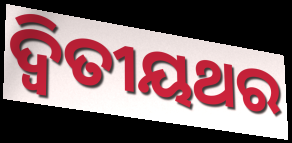
ଦ୍ବିତୀୟଥର